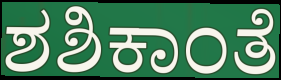
ಶಶಿಕಾಂತೆ